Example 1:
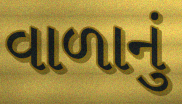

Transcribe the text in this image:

વાળાનું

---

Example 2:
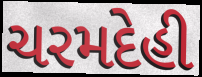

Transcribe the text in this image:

ચરમદેહી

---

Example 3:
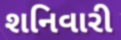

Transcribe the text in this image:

શનિવારી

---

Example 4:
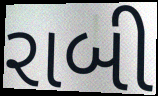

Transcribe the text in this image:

રાબી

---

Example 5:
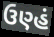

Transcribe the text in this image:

ઉણ્હં